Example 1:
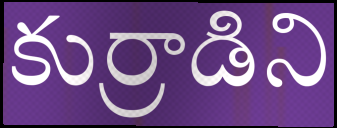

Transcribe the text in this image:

కుర్రాడిని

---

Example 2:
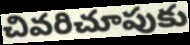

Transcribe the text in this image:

చివరిచూపుకు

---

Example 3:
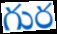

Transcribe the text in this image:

గుర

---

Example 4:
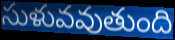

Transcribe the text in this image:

సుళువవుతుంది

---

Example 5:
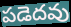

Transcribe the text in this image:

పడెదవు